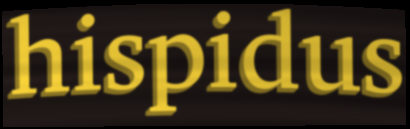
hispidus